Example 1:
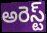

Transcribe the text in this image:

అరెస్ట్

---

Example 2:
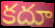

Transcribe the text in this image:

కదూ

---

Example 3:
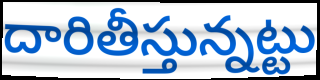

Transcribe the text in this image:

దారితీస్తున్నట్టు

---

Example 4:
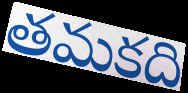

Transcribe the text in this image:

తమకది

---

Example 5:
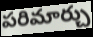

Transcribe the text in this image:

పరిమార్చు